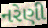
નરેણી